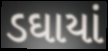
ડઘાયાં